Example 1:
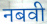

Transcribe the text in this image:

नबवी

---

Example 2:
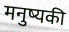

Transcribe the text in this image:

मनुष्यकी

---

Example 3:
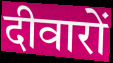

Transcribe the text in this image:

दीवारों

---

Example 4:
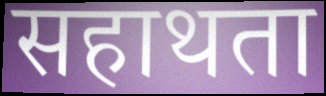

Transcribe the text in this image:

सहाथता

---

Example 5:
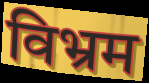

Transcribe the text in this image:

विभ्रम